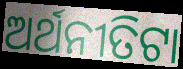
ଅର୍ଥନୀତିଟା